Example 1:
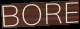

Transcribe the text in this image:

BORE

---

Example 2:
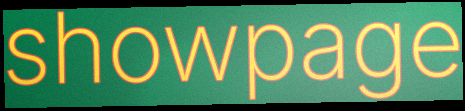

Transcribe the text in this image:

showpage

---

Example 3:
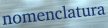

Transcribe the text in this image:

nomenclatura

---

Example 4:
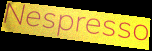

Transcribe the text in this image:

Nespresso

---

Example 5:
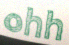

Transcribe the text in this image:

ohh